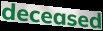
deceased